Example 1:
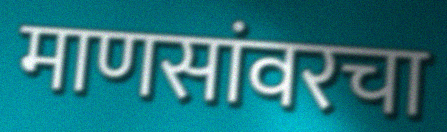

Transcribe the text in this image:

माणसांवरचा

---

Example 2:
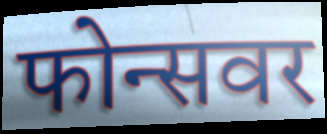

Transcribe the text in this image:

फोन्सवर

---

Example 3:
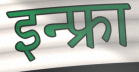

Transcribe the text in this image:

इन्फ्रा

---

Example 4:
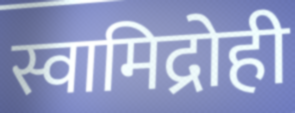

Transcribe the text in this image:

स्वामिद्रोही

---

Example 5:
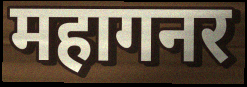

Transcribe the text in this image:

महागनर